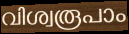
വിശ്വരൂപാം